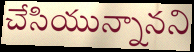
చేసియున్నానని